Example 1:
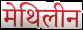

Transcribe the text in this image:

मेथिलीन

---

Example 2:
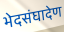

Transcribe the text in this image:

भेदसंघादेण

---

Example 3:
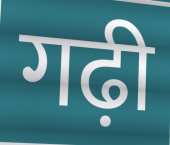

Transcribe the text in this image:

गढ़ी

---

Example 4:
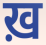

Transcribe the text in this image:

ख़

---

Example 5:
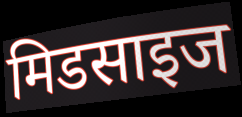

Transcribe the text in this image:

मिडसाइज